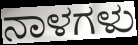
ನಾಳಗಳು